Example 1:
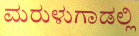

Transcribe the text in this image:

ಮರುಳುಗಾಡಲ್ಲಿ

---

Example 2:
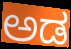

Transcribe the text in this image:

ಅಡ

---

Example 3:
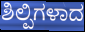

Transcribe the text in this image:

ಶಿಲ್ಪಿಗಳಾದ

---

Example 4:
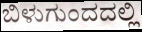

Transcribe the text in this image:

ಬಿಳುಗುಂದದಲ್ಲಿ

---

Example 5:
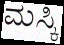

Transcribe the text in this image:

ಮಸ್ಕಿ